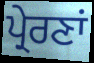
ਪ੍ਰੇਰਣਾਂ